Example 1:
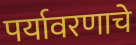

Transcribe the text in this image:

पर्यावरणाचे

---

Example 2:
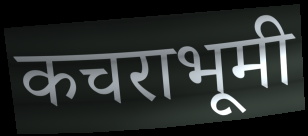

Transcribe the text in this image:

कचराभूमी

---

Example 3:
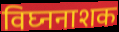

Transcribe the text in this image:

विघ्ननाशक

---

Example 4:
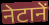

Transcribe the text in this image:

नेटानें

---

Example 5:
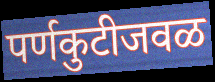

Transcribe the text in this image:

पर्णकुटीजवळ